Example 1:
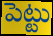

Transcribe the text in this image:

పెట్టు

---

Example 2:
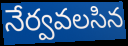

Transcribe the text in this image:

నేర్వవలసిన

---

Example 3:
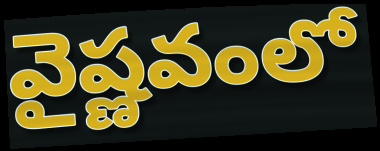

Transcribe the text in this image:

వైష్ణవంలో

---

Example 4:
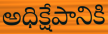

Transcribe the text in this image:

అధిక్షేపానికి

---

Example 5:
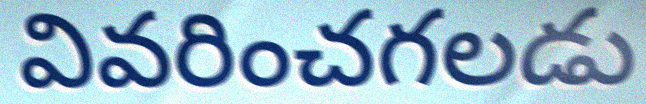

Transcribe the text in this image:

వివరించగలడు